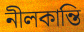
নীলকান্তি